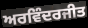
ਅਰਵਿੰਦਰਜੀਤ